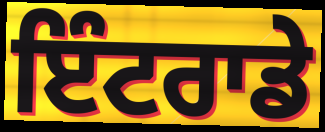
ਇੰਟਰਾਡੇ